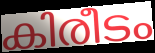
കിരീടം